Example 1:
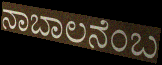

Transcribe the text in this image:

ನಾಬಾಲನೆಂಬ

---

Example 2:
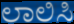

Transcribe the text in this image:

ಲಾಲಿಸಿ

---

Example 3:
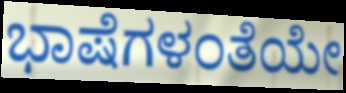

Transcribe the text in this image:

ಭಾಷೆಗಳಂತೆಯೇ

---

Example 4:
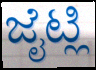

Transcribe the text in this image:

ಜೈಟ್ಲಿ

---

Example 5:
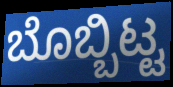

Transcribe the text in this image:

ಬೊಬ್ಬಿಟ್ಟ